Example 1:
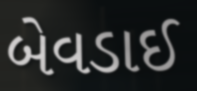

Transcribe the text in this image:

બેવડાઈ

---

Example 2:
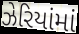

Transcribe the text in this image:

ઝેરિયાંમાં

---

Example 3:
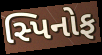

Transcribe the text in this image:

સ્પિનોફ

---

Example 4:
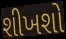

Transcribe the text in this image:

શીખશો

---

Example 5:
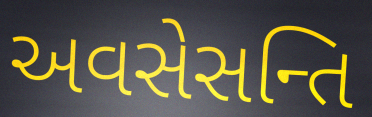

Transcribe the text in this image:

અવસેસન્તિ